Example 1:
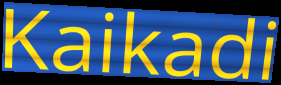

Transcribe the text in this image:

Kaikadi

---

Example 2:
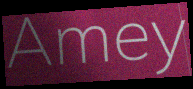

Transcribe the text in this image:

Amey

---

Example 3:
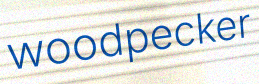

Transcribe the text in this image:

woodpecker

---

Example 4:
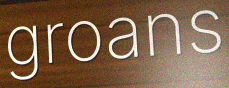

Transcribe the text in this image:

groans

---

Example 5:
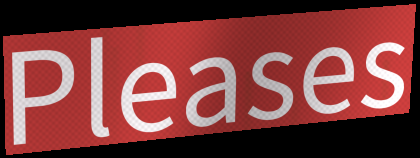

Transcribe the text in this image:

Pleases